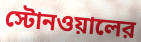
স্টোনওয়ালের